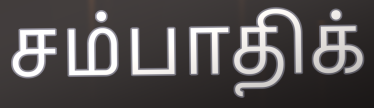
சம்பாதிக்